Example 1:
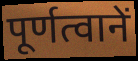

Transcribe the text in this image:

पूर्णत्वानें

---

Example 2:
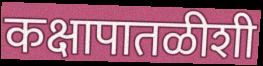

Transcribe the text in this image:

कक्षापातळीशी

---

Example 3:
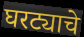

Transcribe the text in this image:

घरट्याचे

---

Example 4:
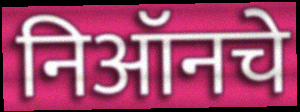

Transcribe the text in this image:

निऑनचे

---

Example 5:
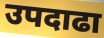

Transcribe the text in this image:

उपदाढा